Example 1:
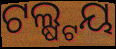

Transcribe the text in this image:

ଟଲ୍ଷ୍ଟୟ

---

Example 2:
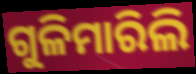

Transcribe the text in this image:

ଗୁଳିମାରିଲି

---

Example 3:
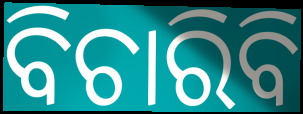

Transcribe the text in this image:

ବିଚାରିବି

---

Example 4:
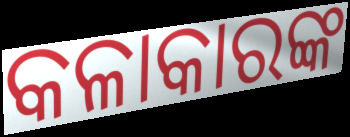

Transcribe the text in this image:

କଳାକାରଙ୍କ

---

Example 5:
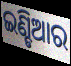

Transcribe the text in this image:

ଇଣ୍ଡିଆର